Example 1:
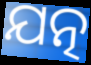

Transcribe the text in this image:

ଯତ୍ନ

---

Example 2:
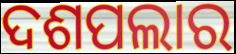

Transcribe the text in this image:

ଦଶପଲାର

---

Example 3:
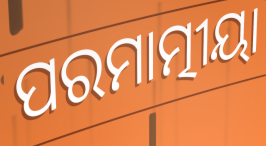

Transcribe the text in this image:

ପରମାତ୍ମୀୟା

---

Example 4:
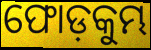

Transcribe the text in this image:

ଫୋଡ଼କୁମ୍ଭ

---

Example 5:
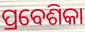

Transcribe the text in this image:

ପ୍ରବେଶିକା